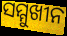
ସମ୍ମୁଖୀନ